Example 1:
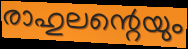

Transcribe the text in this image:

രാഹുലന്റെയും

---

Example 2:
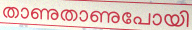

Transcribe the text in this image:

താണുതാണുപോയി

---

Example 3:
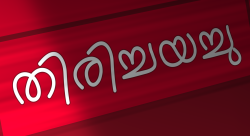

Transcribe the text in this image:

തിരിച്ചയച്ചു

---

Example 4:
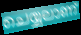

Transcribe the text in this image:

ചെയ്യലാണ്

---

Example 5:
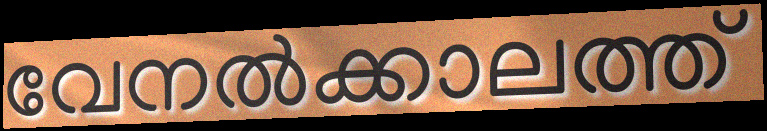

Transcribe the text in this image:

വേനൽക്കാലത്ത്